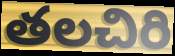
తలచిరి